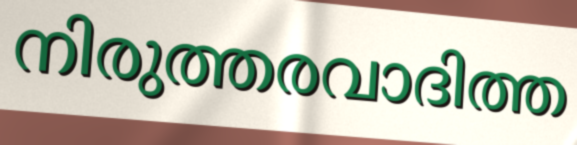
നിരുത്തരവാദിത്ത